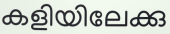
കളിയിലേക്കു